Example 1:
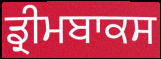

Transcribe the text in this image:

ਡ੍ਰੀਮਬਾਕਸ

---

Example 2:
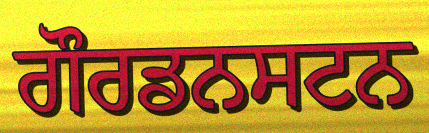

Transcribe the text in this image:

ਗੌਰਡਨਸਟਨ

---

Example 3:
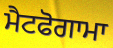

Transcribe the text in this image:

ਮੈਟਫੋਗਾਮਾ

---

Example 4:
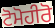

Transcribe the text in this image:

ਟੋਮੋਹੀਰੋ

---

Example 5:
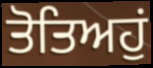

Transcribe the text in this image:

ਤੋਤਿਅਹੁਂ